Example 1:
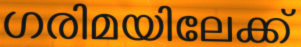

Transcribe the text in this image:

ഗരിമയിലേക്ക്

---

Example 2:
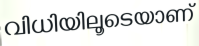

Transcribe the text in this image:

വിധിയിലൂടെയാണ്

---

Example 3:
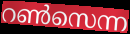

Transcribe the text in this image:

റൺസെന്ന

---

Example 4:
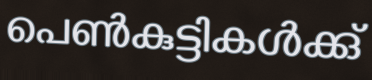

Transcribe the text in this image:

പെൺകുട്ടികൾക്കു്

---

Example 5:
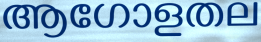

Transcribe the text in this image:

ആഗോളതല